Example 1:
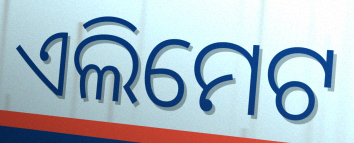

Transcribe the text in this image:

ଏଲିମେଟ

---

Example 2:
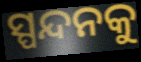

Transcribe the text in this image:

ସ୍ପନ୍ଦନକୁ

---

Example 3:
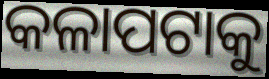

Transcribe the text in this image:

କଳାପଟାକୁ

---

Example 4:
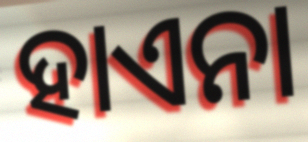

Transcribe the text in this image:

ହାଏନା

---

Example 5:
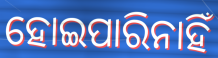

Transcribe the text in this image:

ହୋଇପାରିନାହିଁ